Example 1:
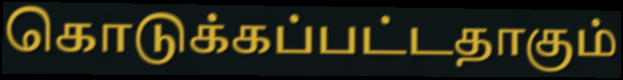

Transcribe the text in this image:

கொடுக்கப்பட்டதாகும்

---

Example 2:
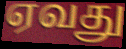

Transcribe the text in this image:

ஏவது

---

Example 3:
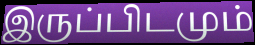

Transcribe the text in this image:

இருப்பிடமும்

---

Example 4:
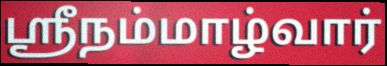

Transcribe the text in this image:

ஸ்ரீநம்மாழ்வார்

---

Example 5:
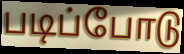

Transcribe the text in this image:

படிப்போடு